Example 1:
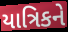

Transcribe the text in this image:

યાત્રિકને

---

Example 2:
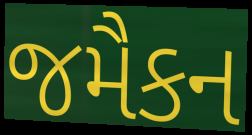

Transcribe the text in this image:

જમૈકન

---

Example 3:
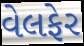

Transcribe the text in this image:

વેલફેર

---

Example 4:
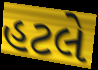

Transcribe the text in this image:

હટલે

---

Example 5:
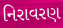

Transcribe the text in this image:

નિરાવરણ